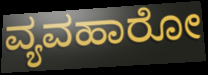
ವ್ಯವಹಾರೋ